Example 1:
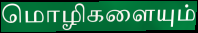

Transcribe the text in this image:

மொழிகளையும்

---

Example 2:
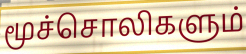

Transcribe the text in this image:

மூச்சொலிகளும்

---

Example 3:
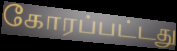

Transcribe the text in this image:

கோரப்பட்டது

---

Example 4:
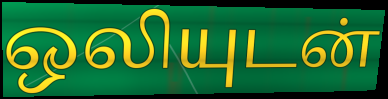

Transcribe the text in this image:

ஒலியுடன்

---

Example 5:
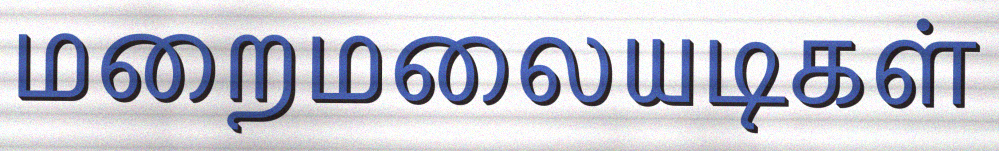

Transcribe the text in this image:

மறைமலையடிகள்